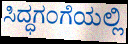
ಸಿದ್ಧಗಂಗೆಯಲ್ಲಿ